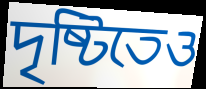
দৃষ্টিতেও